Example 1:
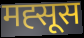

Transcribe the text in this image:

मह्सूस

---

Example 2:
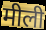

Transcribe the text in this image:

मीली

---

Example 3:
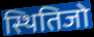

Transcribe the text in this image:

स्थितिजो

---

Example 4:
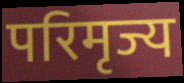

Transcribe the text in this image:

परिमृज्य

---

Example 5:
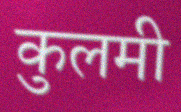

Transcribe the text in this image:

कुलमी